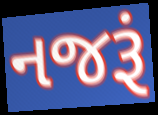
નજરૂં